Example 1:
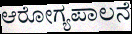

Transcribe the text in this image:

ಆರೋಗ್ಯಪಾಲನೆ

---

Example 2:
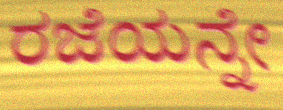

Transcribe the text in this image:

ರಜೆಯನ್ನೇ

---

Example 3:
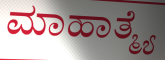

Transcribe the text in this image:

ಮಾಹಾತ್ಮ್ಯೆ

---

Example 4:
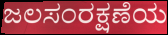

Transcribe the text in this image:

ಜಲಸಂರಕ್ಷಣೆಯ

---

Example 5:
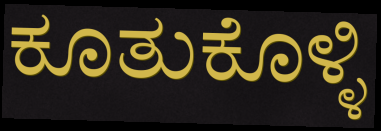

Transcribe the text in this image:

ಕೂತುಕೊಳ್ಳಿ